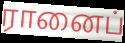
ரானைப்